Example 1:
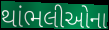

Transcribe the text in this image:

થાંભલીઓના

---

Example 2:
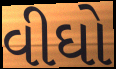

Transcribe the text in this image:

વીઘો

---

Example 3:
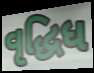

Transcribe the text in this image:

વૃદ્ધિધ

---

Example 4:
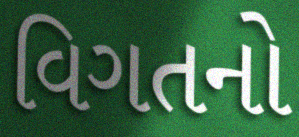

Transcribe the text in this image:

વિગતનો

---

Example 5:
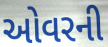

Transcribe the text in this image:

ઓવરની